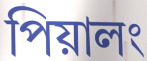
পিয়ালং